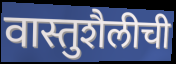
वास्तुशैलीची